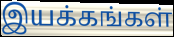
இயக்கங்கள்